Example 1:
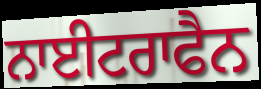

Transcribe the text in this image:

ਨਾਈਟਰਾਫੈਨ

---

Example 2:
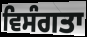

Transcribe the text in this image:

ਵਿਸੰਗਤਾ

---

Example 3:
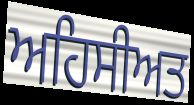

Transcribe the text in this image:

ਅਹਿਸੀਅਤ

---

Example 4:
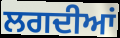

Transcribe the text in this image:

ਲਗਦੀਆਂ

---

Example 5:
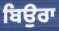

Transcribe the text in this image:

ਬਿਉਰਾ